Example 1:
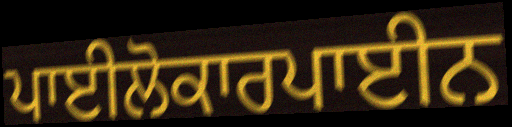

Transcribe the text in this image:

ਪਾਈਲੋਕਾਰਪਾਈਨ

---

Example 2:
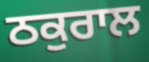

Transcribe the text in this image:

ਠਕੁਰਾਲ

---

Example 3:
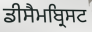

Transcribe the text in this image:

ਡੀਸੈਮਬ੍ਰਿਸਟ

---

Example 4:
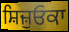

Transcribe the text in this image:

ਸ਼ਿਜ਼ੁਓਕਾ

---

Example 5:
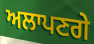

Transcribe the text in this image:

ਅਲਾਪਣਗੇ